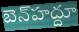
బెన్‍హద్దూ